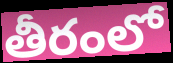
తీరంలో